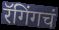
रॅगिंगचं